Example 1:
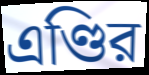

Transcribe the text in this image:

এণ্ডির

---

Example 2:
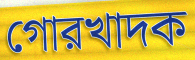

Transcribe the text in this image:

গোরখাদক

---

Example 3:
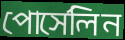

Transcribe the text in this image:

পোর্সেলিন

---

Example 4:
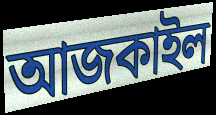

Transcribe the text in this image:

আজকাইল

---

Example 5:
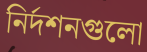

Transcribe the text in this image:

নির্দশনগুলো